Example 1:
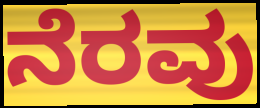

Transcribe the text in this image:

ನೆರವು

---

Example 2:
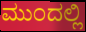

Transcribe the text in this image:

ಮುಂದಲ್ಲಿ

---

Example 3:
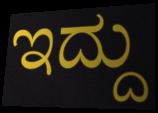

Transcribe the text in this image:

ಇದ್ದು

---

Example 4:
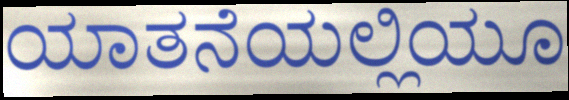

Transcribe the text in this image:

ಯಾತನೆಯಲ್ಲಿಯೂ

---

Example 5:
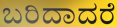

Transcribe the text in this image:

ಬರಿದಾದರೆ